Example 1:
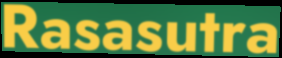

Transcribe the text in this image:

Rasasutra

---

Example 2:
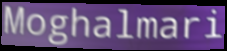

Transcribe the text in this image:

Moghalmari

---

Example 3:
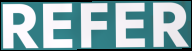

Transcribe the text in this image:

REFER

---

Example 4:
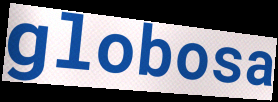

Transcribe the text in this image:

globosa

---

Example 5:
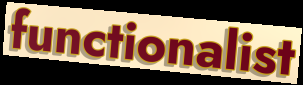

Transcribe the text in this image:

functionalist